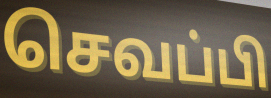
செவப்பி